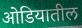
ओडियातील